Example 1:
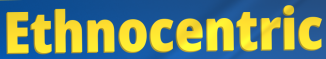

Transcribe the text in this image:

Ethnocentric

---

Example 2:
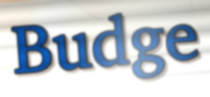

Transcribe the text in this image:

Budge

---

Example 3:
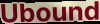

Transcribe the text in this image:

Ubound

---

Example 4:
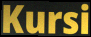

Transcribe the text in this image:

Kursi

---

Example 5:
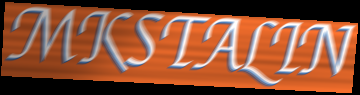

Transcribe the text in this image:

MKSTALIN